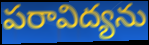
పరావిద్యను